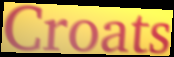
Croats